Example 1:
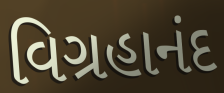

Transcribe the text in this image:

વિગ્રહાનંદ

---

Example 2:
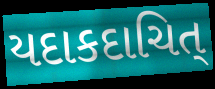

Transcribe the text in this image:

યદાકદાચિત્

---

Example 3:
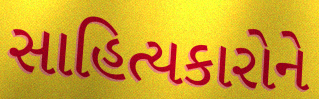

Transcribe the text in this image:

સાહિત્યકારોને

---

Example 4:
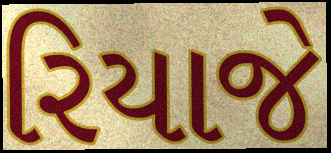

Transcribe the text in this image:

રિયાજે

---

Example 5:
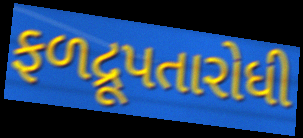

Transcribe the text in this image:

ફળદ્રૂપતારોધી